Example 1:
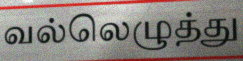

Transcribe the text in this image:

வல்லெழுத்து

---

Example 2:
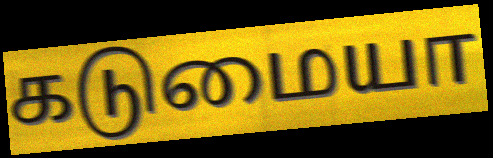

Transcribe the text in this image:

கடுமையா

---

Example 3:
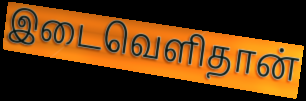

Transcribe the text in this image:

இடைவெளிதான்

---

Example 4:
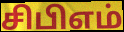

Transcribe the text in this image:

சிபிஎம்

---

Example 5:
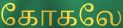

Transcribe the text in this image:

கோகலே